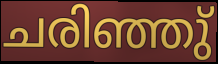
ചരിഞ്ഞു്